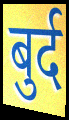
बुर्द